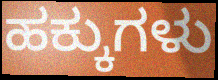
ಹಕ್ಕುಗಳು